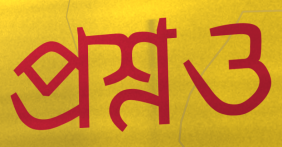
প্রশ্নও